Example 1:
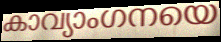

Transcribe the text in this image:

കാവ്യാംഗനയെ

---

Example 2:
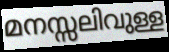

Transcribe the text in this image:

മനസ്സലിവുള്ള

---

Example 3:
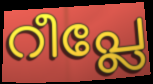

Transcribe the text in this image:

റീപ്ലേ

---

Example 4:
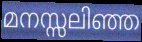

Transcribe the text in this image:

മനസ്സലിഞ്ഞ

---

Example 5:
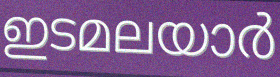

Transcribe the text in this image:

ഇടമലയാർ